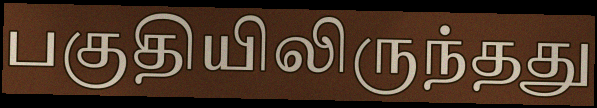
பகுதியிலிருந்தது